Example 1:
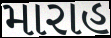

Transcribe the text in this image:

મારાહ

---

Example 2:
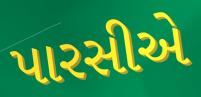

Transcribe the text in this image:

પારસીએ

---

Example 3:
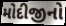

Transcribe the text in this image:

મોદીજીનો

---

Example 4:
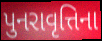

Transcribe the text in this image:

પુનરાવૃત્તિના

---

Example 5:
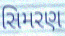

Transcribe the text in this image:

સિમરણ